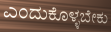
ಎಂದುಕೊಳ್ಳಬೇಕು